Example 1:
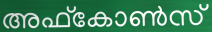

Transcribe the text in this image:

അഫ്കോൺസ്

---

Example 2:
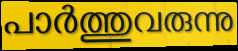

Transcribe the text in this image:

പാർത്തുവരുന്നു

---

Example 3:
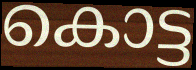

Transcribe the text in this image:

കൊട്ട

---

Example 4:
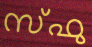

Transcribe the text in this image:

സ്ഫു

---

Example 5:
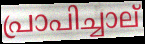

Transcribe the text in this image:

പ്രാപിച്ചാല്